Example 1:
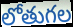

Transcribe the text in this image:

లోతుగల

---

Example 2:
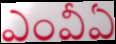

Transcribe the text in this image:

ఎంవీఏ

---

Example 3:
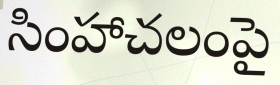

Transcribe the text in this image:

సింహాచలంపై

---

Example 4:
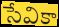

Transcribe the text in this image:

సేవికా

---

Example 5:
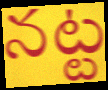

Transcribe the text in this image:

నట్ట